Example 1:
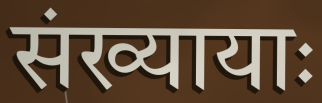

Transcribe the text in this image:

संख्यायाः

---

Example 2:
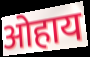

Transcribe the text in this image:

ओहाय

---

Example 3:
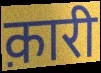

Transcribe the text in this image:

क़ारी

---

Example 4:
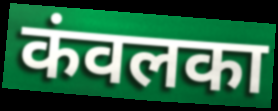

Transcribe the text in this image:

कंवलका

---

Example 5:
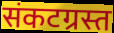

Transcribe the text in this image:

संकटग्रस्त